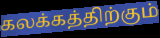
கலக்கத்திற்கும்